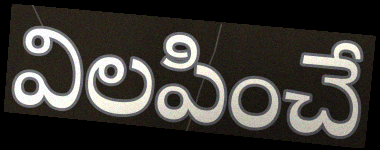
విలపించే